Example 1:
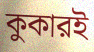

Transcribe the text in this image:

কুকারই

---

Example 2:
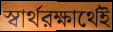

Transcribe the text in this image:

স্বার্থরক্ষার্থেই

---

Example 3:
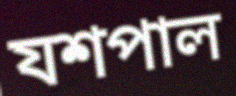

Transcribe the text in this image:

যশপাল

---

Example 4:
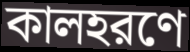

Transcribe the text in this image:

কালহরণে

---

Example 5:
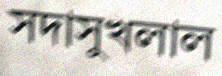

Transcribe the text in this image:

সদাসুখলাল